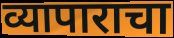
व्यापाराचा